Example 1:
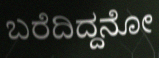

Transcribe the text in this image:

ಬರೆದಿದ್ದನೋ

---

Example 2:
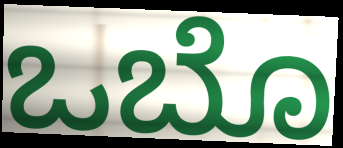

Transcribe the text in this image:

ಒಬೊ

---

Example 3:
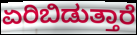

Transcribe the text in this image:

ಏರಿಬಿಡುತ್ತಾರೆ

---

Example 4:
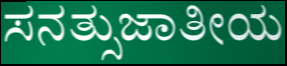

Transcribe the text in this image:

ಸನತ್ಸುಜಾತೀಯ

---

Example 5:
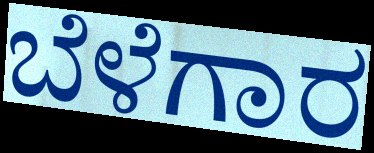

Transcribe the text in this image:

ಬೆಳೆಗಾರ